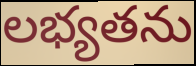
లభ్యతను